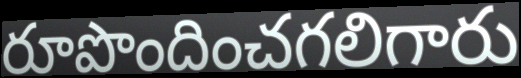
రూపొందించగలిగారు